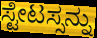
ಸ್ಟೇಟಸ್ಸನ್ನು